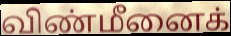
விண்மீனைக்